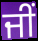
ਜੀਂ